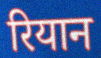
रियान